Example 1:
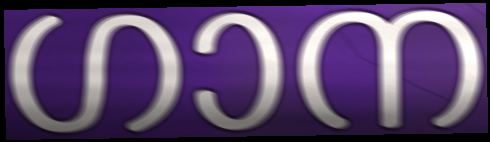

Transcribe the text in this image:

ഗാന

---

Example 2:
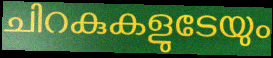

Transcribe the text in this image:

ചിറകുകളുടേയും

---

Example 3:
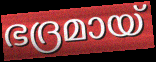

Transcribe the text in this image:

ഭദ്രമായ്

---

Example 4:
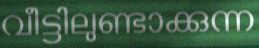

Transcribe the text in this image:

വീട്ടിലുണ്ടാക്കുന്ന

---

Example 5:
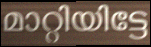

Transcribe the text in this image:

മാറ്റിയിട്ടേ